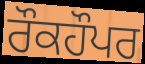
ਰੌਕਹੌਪਰ